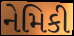
નેમિકી